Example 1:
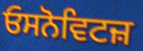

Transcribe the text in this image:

ਓਸਨੋਵਿਟਜ਼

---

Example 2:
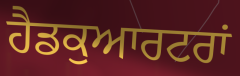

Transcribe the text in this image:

ਹੈਡਕੁਆਰਟਰਾਂ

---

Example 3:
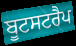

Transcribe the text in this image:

ਬੂਟਸਟਰੈਪ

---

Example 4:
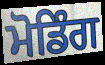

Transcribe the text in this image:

ਮੋਡਿੰਗ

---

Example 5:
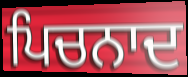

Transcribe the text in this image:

ਪਿਚਨਾਦ